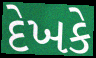
દેખકે